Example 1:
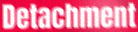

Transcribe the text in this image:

Detachment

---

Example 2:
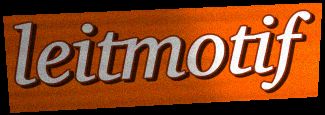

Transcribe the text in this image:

leitmotif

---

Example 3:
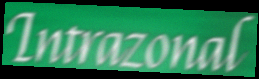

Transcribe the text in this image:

Intrazonal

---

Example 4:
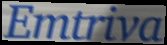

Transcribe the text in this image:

Emtriva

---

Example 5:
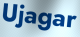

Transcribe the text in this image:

Ujagar